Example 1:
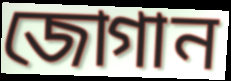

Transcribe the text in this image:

জোগান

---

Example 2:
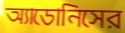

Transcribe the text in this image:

অ্যাডোনিসের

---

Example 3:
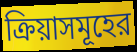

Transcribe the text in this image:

ক্রিয়াসমূহের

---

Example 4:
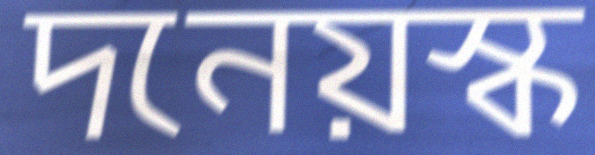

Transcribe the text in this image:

দনেয়স্ক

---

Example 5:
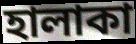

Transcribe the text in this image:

হালাকা